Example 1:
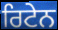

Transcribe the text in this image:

ਰਿਟੇਨ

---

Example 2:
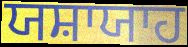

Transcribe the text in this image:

ਯਸ਼ਾਯਾਹ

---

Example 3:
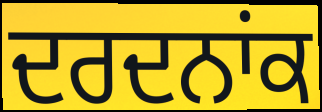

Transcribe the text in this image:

ਦਰਦਨਾਂਕ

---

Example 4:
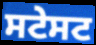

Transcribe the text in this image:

ਸਟੇਸਟ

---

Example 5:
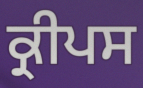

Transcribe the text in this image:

ਕ੍ਰੀਪਸ